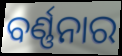
ବର୍ଣ୍ଣନାର